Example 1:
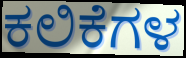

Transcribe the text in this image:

ಕಲಿಕೆಗಳ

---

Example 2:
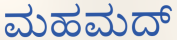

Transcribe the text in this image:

ಮಹಮದ್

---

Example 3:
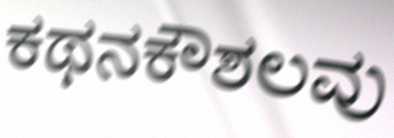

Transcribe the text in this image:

ಕಥನಕೌಶಲವು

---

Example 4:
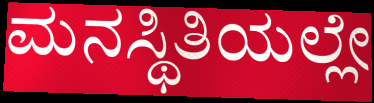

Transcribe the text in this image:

ಮನಸ್ಥಿತಿಯಲ್ಲೇ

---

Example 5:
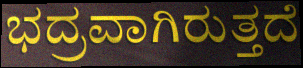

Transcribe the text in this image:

ಭದ್ರವಾಗಿರುತ್ತದೆ